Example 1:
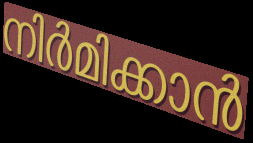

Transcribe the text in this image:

നിർമിക്കാൻ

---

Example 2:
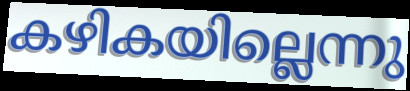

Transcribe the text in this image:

കഴികയില്ലെന്നു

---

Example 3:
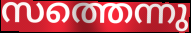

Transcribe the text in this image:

സത്തെന്നു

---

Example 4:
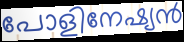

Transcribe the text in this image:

പോളിനേഷ്യൻ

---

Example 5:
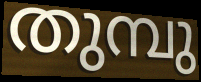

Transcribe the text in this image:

തുമ്പു